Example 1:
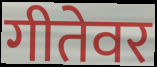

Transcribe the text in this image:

गीतेवर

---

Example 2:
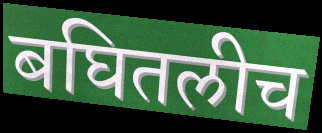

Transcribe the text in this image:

बघितलीच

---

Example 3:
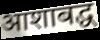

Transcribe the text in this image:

आशाबद्ध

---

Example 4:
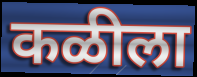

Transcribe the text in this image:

कळीला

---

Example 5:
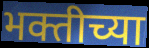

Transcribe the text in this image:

भक्‍तीच्या